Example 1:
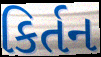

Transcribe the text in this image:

કિર્તન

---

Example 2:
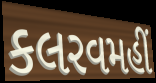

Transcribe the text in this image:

કલરવમહીં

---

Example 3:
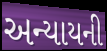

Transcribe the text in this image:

અન્યાયની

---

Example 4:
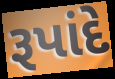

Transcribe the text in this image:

રૂપાંદે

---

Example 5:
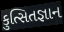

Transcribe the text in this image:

કુત્સિતજ્ઞાન